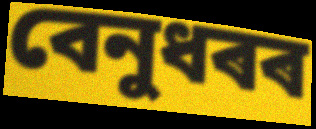
বেনুধৰৰ